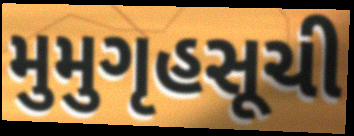
મુમુગૃહસૂચી